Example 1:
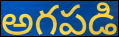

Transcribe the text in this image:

అగపడి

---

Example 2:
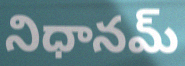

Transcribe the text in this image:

నిధానమ్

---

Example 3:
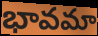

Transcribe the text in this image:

భావమా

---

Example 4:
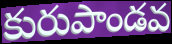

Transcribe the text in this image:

కురుపాండవ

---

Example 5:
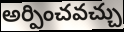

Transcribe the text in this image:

అర్పించవచ్చు